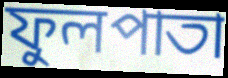
ফুলপাতা